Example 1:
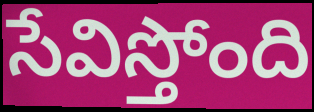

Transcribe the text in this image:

సేవిస్తోంది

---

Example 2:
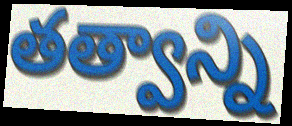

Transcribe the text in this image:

తత్వాన్ని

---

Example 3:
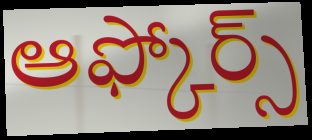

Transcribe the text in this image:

ఆఫ్కోర్స్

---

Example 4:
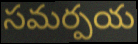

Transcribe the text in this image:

సమర్పయ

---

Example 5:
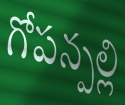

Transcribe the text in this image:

గోపన్పల్లి